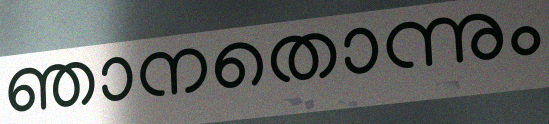
ഞാനതൊന്നും